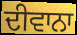
ਦੀਵਾਨਾ